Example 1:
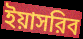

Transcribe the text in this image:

ইয়াসরিব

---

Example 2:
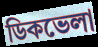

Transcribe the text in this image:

ডিকভেলা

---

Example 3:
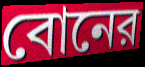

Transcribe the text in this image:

বোনের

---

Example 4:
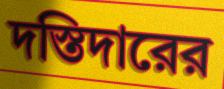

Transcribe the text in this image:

দস্তিদারের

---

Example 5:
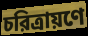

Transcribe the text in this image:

চরিত্রায়ণে